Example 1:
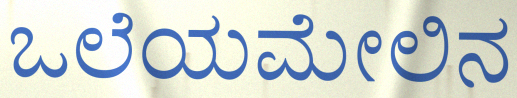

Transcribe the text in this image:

ಒಲೆಯಮೇಲಿನ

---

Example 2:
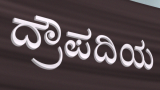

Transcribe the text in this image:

ದ್ರೌಪದಿಯ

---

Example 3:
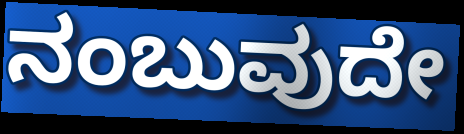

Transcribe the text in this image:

ನಂಬುವುದೇ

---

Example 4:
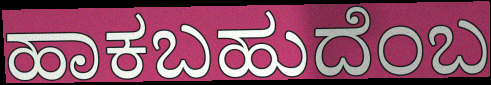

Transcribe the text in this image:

ಹಾಕಬಹುದೆಂಬ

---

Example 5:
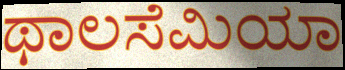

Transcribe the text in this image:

ಥಾಲಸೆಮಿಯಾ